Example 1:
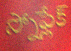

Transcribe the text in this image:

స్నోఫ్లేక్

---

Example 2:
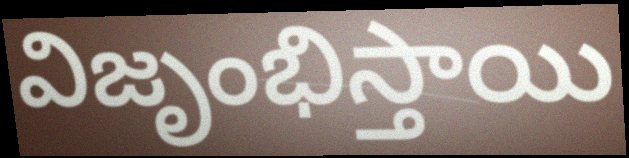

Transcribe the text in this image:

విజృంభిస్తాయి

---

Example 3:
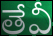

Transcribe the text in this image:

తేవీ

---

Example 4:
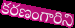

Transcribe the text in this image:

కరణంగారిని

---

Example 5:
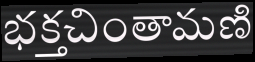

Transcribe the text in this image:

భక్తచింతామణి